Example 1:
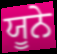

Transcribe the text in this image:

ਯੂਨੇ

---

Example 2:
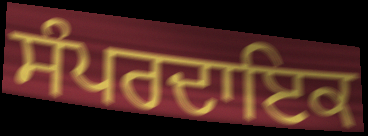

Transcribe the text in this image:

ਸੰਪਰਦਾਇਕ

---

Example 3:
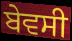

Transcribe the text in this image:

ਬੇਵਸੀ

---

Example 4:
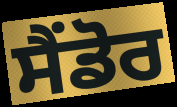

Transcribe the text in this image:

ਸੈਂਡੋਰ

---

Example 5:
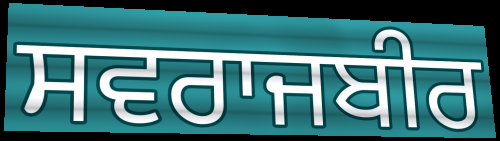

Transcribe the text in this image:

ਸਵਰਾਜਬੀਰ